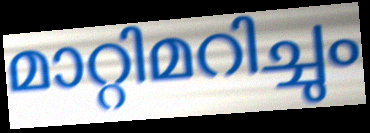
മാറ്റിമറിച്ചും